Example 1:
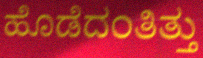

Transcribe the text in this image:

ಹೊಡೆದಂತಿತ್ತು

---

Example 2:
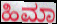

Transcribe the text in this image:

ಹಿಮಾ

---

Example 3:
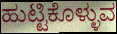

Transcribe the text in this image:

ಹುಟ್ಟಿಕೊಳ್ಳುವ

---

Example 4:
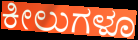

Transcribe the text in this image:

ಕೀಲುಗಳೂ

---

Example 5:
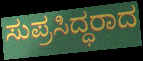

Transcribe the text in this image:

ಸುಪ್ರಸಿದ್ಧರಾದ